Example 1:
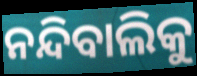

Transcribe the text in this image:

ନନ୍ଦିବାଲିକୁ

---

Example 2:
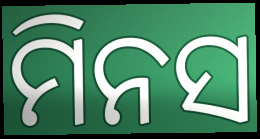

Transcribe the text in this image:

ମିନସ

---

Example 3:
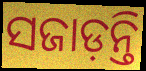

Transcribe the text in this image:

ସଜାଡ଼ନ୍ତି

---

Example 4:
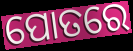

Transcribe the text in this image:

ପୋତରେ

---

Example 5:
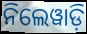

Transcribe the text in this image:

ନିଲେୱାଡ଼ି